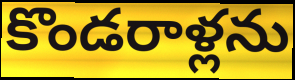
కొండరాళ్లను